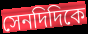
সেনদিদিকে